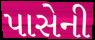
પાસેની